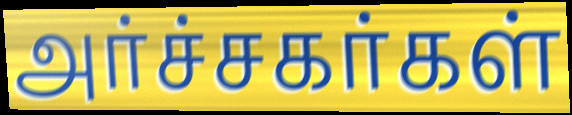
அர்ச்சகர்கள்